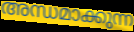
അന്ധമാക്കുന്ന